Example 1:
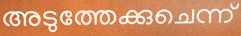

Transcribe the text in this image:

അടുത്തേക്കുചെന്ന്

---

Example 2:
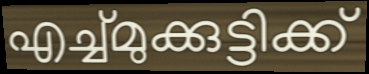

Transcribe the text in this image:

എച്ച്മുക്കുട്ടിക്ക്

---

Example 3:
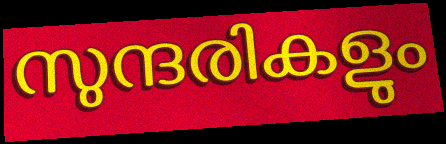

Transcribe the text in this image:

സുന്ദരികളും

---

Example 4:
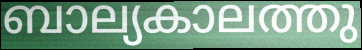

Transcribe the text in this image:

ബാല്യകാലത്തു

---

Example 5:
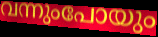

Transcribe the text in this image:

വന്നുംപോയും